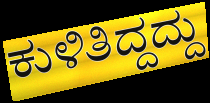
ಕುಳಿತಿದ್ದದ್ದು